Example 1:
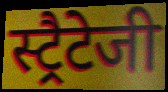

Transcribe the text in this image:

स्ट्रैटेजी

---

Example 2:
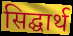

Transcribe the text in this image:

सिद्घार्थ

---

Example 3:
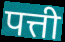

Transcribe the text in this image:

पत्ती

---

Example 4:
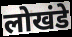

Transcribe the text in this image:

लोखंडे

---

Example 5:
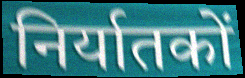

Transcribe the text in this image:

निर्यातकों